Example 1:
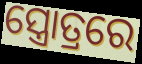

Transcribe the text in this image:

ସ୍ତ୍ରୋତ୍ରରେ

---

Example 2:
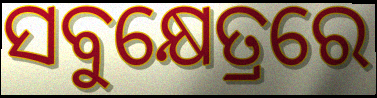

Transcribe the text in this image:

ସବୁକ୍ଷେତ୍ରରେ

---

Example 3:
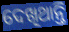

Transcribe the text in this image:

ଦେଖିଥାନ୍ତି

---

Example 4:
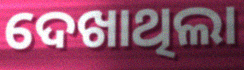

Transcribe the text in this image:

ଦେଖାଥିଲା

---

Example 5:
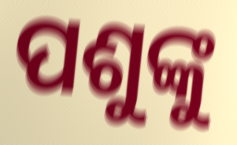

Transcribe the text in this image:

ପଶୁଙ୍କୁ